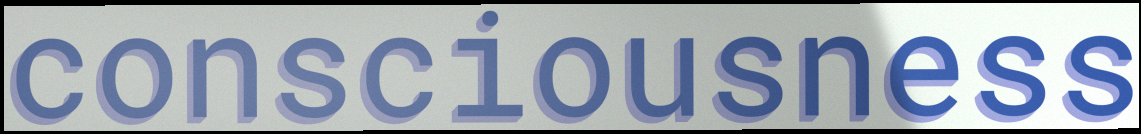
consciousness